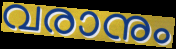
വരാനും